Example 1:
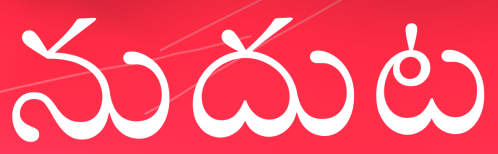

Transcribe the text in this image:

నుదుట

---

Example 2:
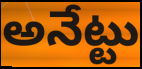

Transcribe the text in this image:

అనేట్టు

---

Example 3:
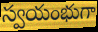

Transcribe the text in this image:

స్వయంభుగా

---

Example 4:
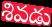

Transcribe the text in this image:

శివడు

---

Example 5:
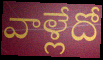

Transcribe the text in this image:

వాళ్లేదో